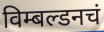
विम्बल्डनचं